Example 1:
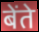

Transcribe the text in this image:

बेंते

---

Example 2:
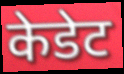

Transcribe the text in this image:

केडेट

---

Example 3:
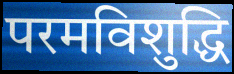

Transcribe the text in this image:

परमविशुद्धि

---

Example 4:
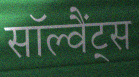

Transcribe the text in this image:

सॉल्वैंट्स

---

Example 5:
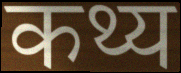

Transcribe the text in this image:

कथ्य